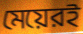
মেয়েরই